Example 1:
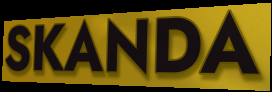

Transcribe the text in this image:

SKANDA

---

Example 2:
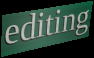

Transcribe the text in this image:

editing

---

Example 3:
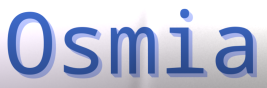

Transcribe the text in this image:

Osmia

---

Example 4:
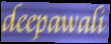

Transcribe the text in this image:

deepawali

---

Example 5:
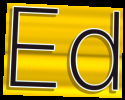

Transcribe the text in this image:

Ed